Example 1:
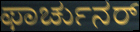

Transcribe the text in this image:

ಫಾರ್ಚುನರ್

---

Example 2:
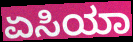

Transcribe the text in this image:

ಏಸಿಯಾ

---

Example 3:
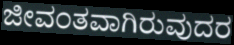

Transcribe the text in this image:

ಜೀವಂತವಾಗಿರುವುದರ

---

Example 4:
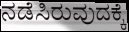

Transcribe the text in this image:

ನಡೆಸಿರುವುದಕ್ಕೆ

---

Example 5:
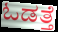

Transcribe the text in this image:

ಓಡತ್ತೆ